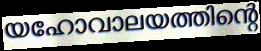
യഹോവാലയത്തിന്റെ